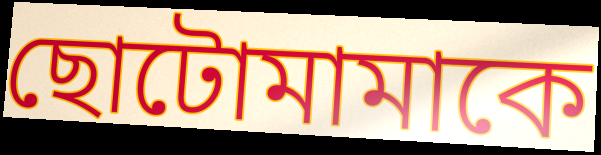
ছোটোমামাকে